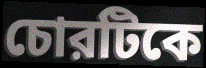
চোরটিকে